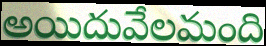
అయిదువేలమంది